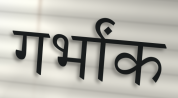
गर्भांक